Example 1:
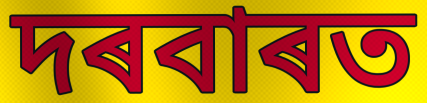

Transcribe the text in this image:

দৰবাৰত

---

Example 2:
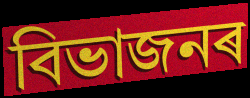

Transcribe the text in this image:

বিভাজনৰ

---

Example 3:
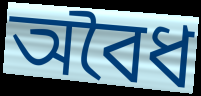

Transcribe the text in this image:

অবৈধ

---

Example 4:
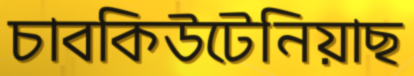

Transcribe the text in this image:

চাবকিউটেনিয়াছ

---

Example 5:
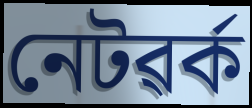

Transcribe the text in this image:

নেটৱৰ্ক